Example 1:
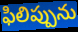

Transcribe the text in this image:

ఫిలిప్పును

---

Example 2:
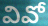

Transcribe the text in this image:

వివో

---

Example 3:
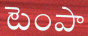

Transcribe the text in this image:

టెంపా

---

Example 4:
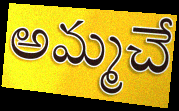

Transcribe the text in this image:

అమ్మచే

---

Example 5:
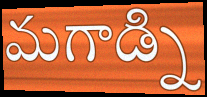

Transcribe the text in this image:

మగాడ్ని